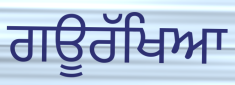
ਗਊਰੱਖਿਆ